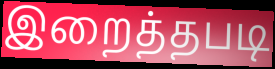
இறைத்தபடி